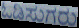
ಓಡಿಸುಗರು